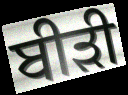
ਬੀਡ਼ੀ